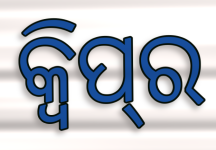
କ୍ଵିପ୍‌ର